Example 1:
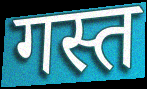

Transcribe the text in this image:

गस्त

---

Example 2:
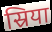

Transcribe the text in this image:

स्रिया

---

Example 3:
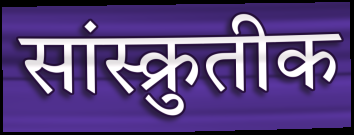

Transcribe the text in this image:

सांस्क्रुतीक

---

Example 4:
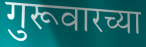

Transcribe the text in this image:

गुरूवारच्या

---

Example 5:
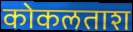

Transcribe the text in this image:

कोकलताश